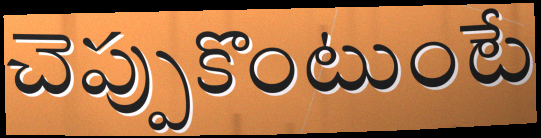
చెప్పుకొంటుంటే